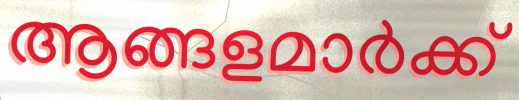
ആങ്ങളമാർക്ക്